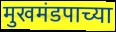
मुखमंडपाच्या